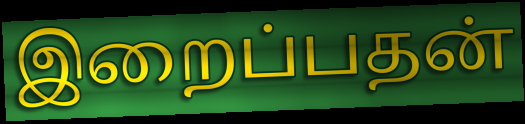
இறைப்பதன்